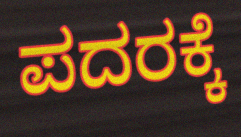
ಪದರಕ್ಕೆ